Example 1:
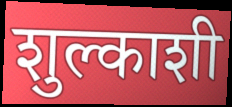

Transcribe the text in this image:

शुल्काशी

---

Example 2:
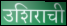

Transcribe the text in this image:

उशिराची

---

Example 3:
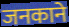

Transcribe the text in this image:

जनकाने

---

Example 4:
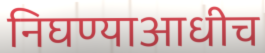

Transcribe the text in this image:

निघण्याआधीच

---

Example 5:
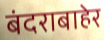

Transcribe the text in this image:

बंदराबाहेर